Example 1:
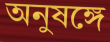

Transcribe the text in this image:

অনুষঙ্গে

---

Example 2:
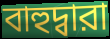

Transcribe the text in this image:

বাহুদ্বারা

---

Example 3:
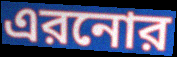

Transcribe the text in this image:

এরনোর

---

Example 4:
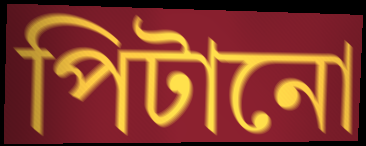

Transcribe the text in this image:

পিটানো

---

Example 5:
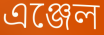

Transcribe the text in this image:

এঞ্জেল